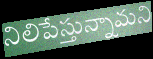
నిలిపేస్తున్నామని